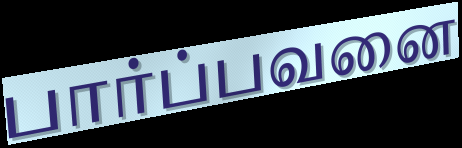
பார்ப்பவனை